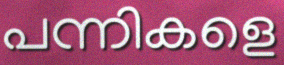
പന്നികളെ